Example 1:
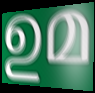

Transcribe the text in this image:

ഉമ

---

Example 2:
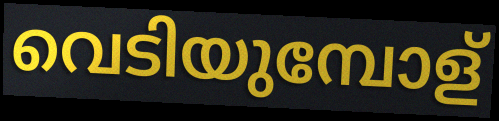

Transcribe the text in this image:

വെടിയുമ്പോള്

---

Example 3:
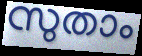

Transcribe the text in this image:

സുതാം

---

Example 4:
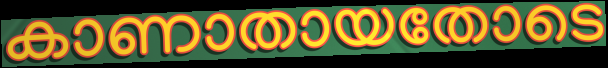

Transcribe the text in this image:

കാണാതായതോടെ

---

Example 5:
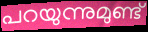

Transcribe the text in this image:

പറയുന്നുമുണ്ട്